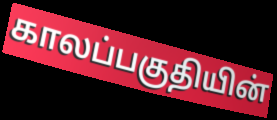
காலப்பகுதியின்